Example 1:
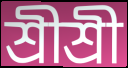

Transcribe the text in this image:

শ্ৰীশ্ৰী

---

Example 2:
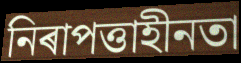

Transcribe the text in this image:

নিৰাপত্তাহীনতা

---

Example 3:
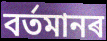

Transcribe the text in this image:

বৰ্তমানৰ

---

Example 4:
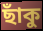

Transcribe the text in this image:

ছাঁকু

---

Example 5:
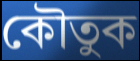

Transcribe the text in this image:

কৌতুক